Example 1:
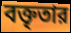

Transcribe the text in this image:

বক্তৃতার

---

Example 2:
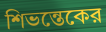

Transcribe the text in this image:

শিভন্তেকের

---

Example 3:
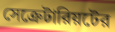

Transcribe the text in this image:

সেক্রেটারিয়টের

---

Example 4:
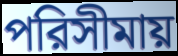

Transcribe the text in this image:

পরিসীমায়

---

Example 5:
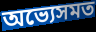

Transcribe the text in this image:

অভ্যেসমত